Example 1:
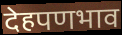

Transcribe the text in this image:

देहपणभाव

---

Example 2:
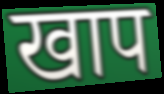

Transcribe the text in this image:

खाप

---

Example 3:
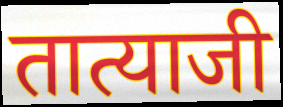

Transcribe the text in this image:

तात्याजी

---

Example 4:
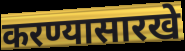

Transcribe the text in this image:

करण्यासारखे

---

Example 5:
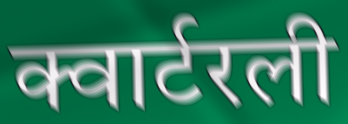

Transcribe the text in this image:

क्वार्टरली